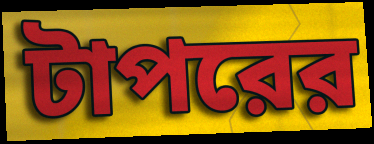
টাপরের